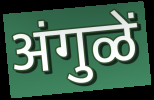
अंगुळें